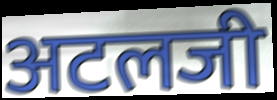
अटलजी